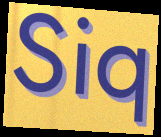
Siq